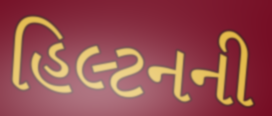
હિલ્ટનની